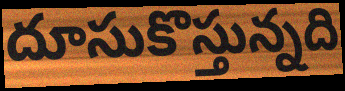
దూసుకొస్తున్నది